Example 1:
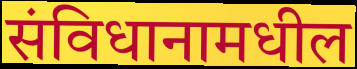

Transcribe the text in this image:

संविधानामधील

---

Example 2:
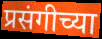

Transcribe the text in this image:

प्रसंगीच्या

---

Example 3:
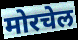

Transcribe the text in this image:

मोरचेल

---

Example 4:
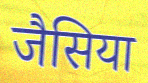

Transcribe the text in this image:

जैसिया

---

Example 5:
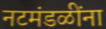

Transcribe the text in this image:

नटमंडळींना